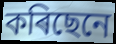
কৰিছেনে